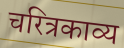
चरित्रकाव्य